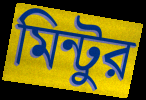
মিন্টুর